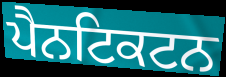
ਪੈਨਟਿਕਟਨ